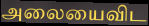
அலையைவிட